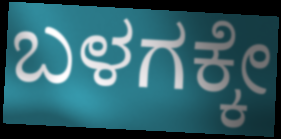
ಬಳಗಕ್ಕೇ